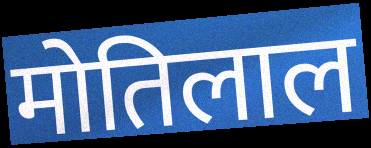
मोतिलाल